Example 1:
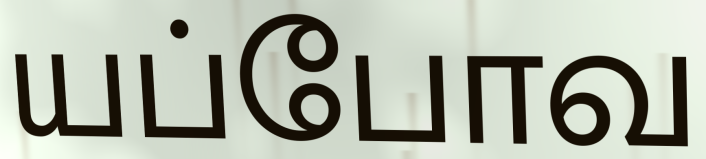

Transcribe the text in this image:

யப்போவ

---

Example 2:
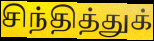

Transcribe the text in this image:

சிந்தித்துக்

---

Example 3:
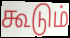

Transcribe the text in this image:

கூடும்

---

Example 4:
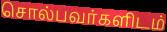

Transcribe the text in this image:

சொல்பவர்களிடம்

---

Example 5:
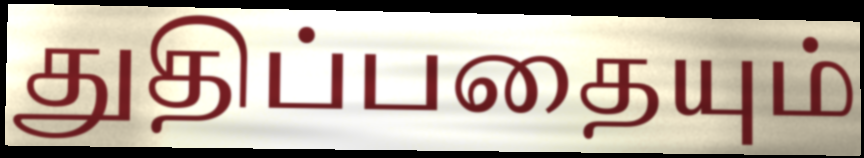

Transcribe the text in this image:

துதிப்பதையும்